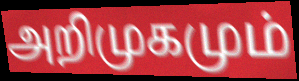
அறிமுகமும்